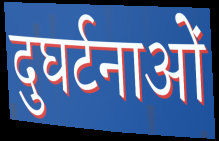
दुघर्टनाओं